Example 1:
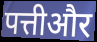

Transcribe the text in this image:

पत्तीऔर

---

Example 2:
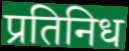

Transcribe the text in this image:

प्रतिनिध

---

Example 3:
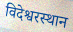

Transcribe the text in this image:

विदेश्वरस्थान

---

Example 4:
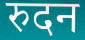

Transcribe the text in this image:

रुदन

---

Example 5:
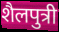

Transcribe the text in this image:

शैलपुत्री